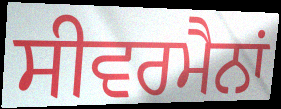
ਸੀਵਰਮੈਨਾਂ